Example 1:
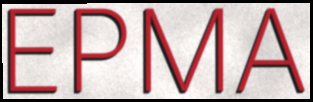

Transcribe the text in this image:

EPMA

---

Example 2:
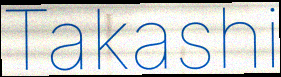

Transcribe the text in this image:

Takashi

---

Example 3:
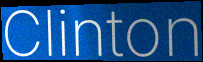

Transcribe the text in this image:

Clinton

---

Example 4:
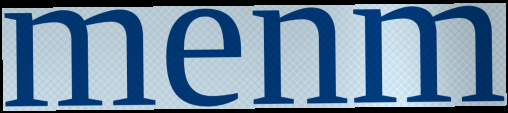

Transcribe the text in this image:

menm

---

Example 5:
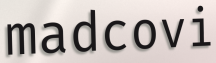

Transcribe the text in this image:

madcovi